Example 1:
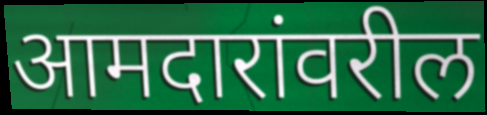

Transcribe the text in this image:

आमदारांवरील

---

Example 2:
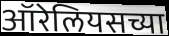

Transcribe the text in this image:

ऑरेलियसच्या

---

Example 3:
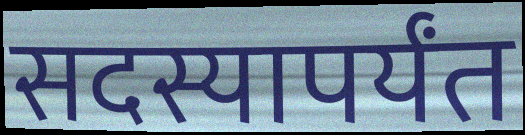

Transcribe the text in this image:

सदस्यापर्यंत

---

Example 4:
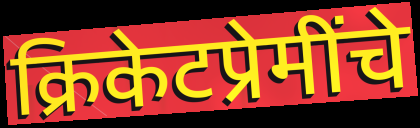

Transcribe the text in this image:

क्रिकेटप्रेमींचे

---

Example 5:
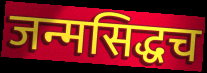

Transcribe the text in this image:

जन्मसिद्धच